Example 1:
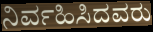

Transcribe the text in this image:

ನಿರ್ವಹಿಸಿದವರು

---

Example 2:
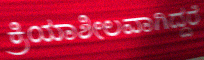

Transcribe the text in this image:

ಕ್ರಿಯಾಶೀಲವಾಗಿದ್ದರೆ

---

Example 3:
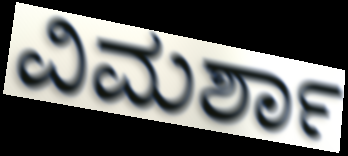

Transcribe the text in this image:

ವಿಮರ್ಶಾ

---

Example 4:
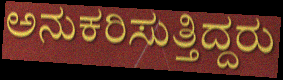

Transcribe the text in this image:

ಅನುಕರಿಸುತ್ತಿದ್ದರು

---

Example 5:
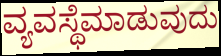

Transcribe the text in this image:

ವ್ಯವಸ್ಥೆಮಾಡುವುದು